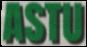
ASTU